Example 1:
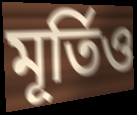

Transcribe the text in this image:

মূৰ্তিও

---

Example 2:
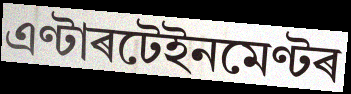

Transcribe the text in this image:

এণ্টাৰটেইনমেণ্টৰ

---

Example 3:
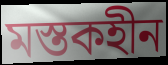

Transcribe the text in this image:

মস্তকহীন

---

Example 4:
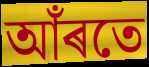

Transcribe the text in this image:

আঁৰতে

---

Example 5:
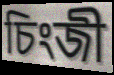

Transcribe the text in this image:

চিংজী